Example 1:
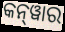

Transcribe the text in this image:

କନ୍‍ୱାର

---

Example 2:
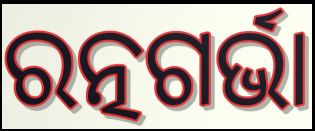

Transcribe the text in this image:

ରତ୍ନଗର୍ଭା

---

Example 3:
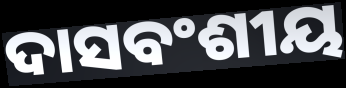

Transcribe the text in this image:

ଦାସବଂଶୀୟ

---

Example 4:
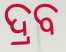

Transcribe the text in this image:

ଦ୍ରବ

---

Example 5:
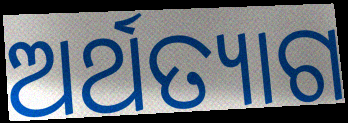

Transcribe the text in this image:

ଅର୍ଥତ୍ୟାଗ